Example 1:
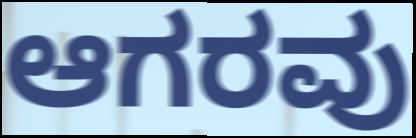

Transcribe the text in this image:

ಆಗರವು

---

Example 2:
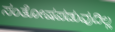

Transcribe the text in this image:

ಸಂತೋಷಪಡುವುದಿಲ್ಲ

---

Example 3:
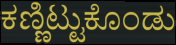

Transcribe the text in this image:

ಕಣ್ಣಿಟ್ಟುಕೊಂಡು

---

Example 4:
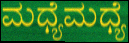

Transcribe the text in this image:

ಮಧ್ಯೆಮಧ್ಯೆ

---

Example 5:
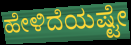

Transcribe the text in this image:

ಹೇಳಿದೆಯಷ್ಟೇ